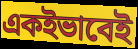
একইভাবেই